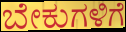
ಬೇಕುಗಳಿಗೆ